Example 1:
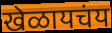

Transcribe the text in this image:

खेळायचंय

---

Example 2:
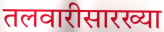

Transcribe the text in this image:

तलवारीसारख्या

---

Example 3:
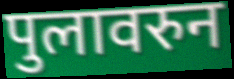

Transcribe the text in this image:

पुलावरुन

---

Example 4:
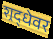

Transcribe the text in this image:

श्रद्धेवर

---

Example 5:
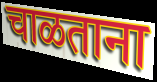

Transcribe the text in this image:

चाळताना